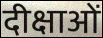
दीक्षाओं